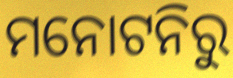
ମନୋଟନିରୁ